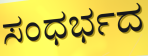
ಸಂಧರ್ಭದ